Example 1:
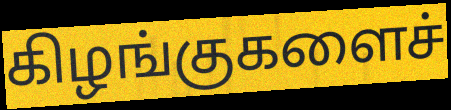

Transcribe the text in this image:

கிழங்குகளைச்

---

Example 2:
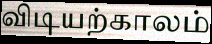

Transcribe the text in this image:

விடியற்காலம்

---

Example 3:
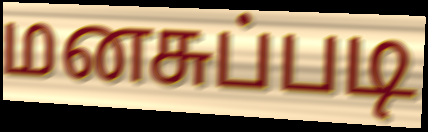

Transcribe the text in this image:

மனசுப்படி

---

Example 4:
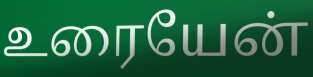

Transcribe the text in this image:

உரையேன்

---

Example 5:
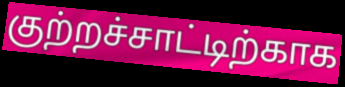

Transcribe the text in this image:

குற்றச்சாட்டிற்காக